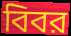
বিবর